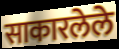
साकारलेले